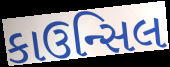
કાઉન્‍સિલ